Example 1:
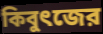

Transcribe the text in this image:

কিবুৎজের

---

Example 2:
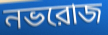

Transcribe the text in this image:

নভরোজ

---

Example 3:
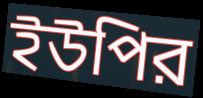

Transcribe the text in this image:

ইউপির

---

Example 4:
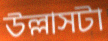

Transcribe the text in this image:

উল্লাসটা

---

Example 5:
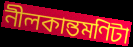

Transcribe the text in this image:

নীলকান্তমণিটা